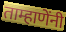
ताम्हाणेंनी